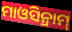
ମାଓସିନ୍ରାମ୍